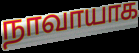
நாவாயாக